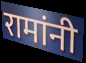
रामांनी